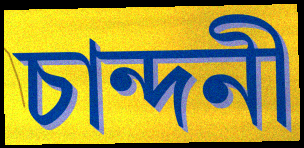
চান্দনী